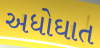
અધોઘાત